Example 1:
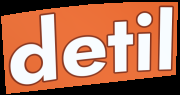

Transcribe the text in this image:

detil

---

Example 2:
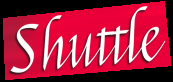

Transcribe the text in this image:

Shuttle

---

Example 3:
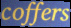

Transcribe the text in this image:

coffers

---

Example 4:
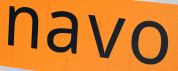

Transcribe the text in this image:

navo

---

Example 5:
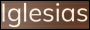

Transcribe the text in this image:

Iglesias